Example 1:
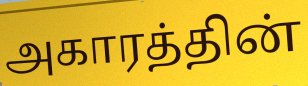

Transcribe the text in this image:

அகாரத்தின்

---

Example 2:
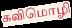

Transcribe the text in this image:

கவிமொழி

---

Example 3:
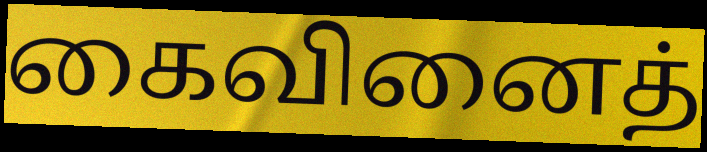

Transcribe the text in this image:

கைவினைத்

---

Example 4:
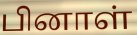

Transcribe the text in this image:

பினாள்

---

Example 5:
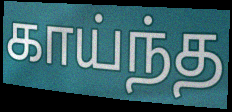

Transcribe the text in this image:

காய்ந்த